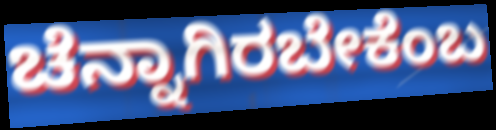
ಚೆನ್ನಾಗಿರಬೇಕೆಂಬ